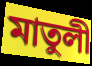
মাতুলী